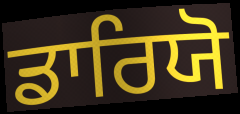
ਡਾਰਿਯੋ